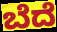
ಬೆದೆ